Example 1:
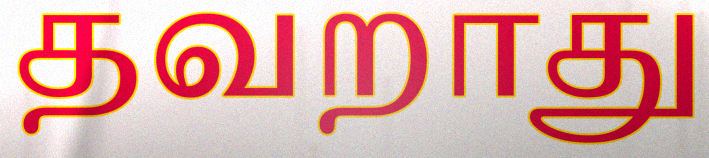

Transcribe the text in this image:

தவறாது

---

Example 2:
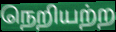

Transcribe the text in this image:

நெறியற்ற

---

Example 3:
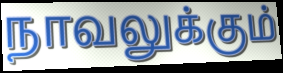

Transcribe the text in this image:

நாவலுக்கும்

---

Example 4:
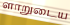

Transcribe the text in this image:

ளாறுடைய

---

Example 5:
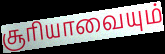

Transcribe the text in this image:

சூரியாவையும்